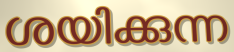
ശയിക്കുന്ന